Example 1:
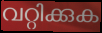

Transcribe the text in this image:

വറ്റിക്കുക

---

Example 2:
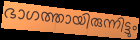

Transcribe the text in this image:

ഭാഗത്തായിരുന്നിട്ടും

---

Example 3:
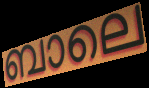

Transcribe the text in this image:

ബാലെ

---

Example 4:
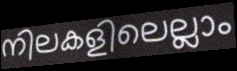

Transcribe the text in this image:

നിലകളിലെല്ലാം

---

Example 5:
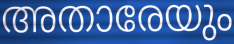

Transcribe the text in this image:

അതാരേയും